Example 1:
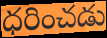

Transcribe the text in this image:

ధరించడు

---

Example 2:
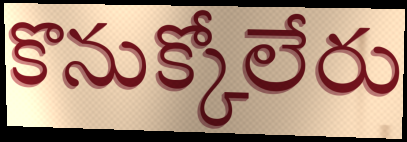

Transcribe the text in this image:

కొనుక్కోలేరు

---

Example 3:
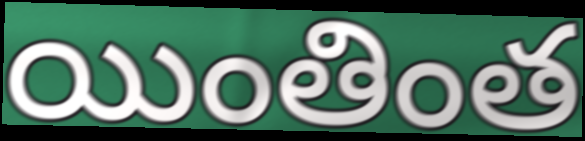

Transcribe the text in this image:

యింతింత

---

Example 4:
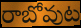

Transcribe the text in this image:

రాబోవుట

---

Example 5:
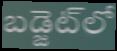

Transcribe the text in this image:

బడ్జెట్‌లో